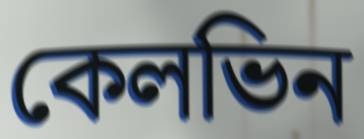
কেলভিন